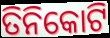
ତିନିକୋଟି